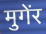
मुगेंर